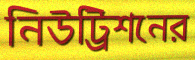
নিউট্রিশনের